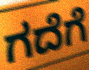
ಗದೆಗೆ